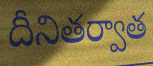
దీనితర్వాత